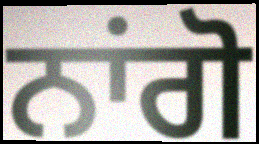
ਨਾਂਗੋ